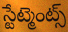
స్టేట్మెంట్స్